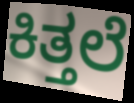
ಕಿತ್ತಲೆ